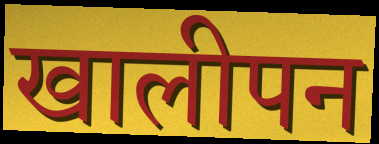
खालीपन